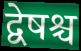
द्वेषश्च